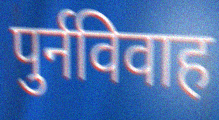
पुर्नविवाह